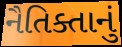
નૈતિક્તાનું